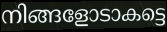
നിങ്ങളോടാകട്ടെ